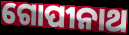
ଗୋପୀନାଥ